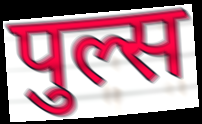
पुल्स